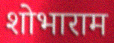
शोभाराम